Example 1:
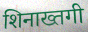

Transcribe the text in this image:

शिनाख्तगी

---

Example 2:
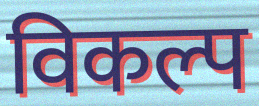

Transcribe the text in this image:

विकल्प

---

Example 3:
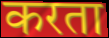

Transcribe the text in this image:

करता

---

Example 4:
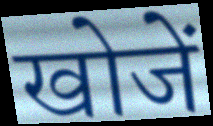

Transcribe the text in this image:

खोजें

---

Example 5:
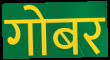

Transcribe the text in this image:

गोबर